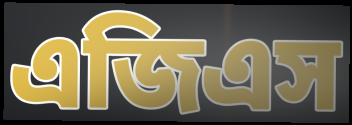
এজিএস